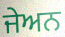
ਜੇਅਨ